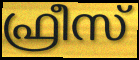
ഫ്രീസ്